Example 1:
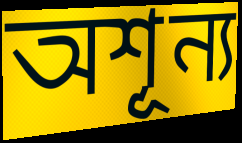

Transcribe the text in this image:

অশূন্য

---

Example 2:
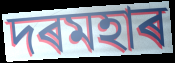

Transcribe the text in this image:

দৰমহাৰ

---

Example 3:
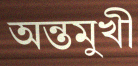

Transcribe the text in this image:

অন্তমুখী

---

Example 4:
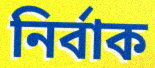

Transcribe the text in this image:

নিৰ্বাক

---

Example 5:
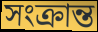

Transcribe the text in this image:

সংক্ৰান্ত